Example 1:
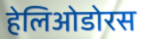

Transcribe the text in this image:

हेलिओडोरस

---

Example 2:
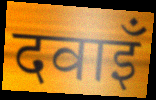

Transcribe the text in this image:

दवाइँ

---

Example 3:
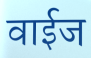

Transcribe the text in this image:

वाईज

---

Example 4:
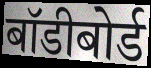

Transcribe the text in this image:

बॉडीबोर्ड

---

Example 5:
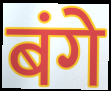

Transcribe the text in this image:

बंगे